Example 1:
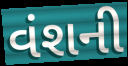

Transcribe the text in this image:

વંશની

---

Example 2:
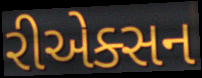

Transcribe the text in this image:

રીએક્સન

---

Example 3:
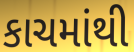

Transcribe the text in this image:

કાચમાંથી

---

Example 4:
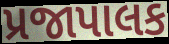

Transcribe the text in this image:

પ્રજાપાલક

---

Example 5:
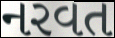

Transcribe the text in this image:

નરવત